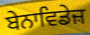
ਬੇਨਾਵਿਡੇਜ਼